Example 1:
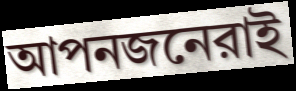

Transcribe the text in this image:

আপনজনেরাই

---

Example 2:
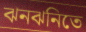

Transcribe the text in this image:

ঝনঝনিতে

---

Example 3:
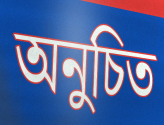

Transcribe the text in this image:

অনুচিত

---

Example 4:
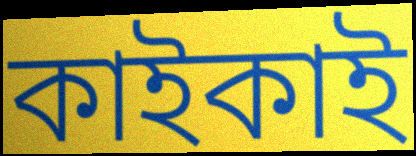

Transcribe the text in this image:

কাইকাই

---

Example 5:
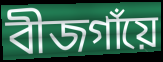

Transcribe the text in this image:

বীজগাঁয়ে